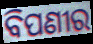
ବିପଣୀର